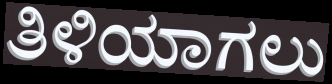
ತಿಳಿಯಾಗಲು